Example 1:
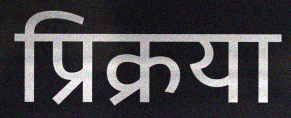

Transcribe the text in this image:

प्रिक्रया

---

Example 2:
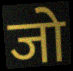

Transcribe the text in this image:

जो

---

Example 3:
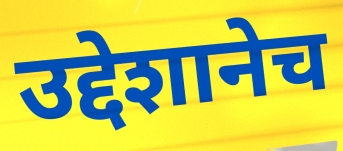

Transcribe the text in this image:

उद्देशानेच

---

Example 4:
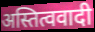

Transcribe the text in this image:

अस्तित्ववादी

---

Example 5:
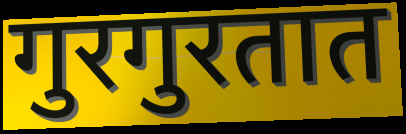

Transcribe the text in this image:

गुरगुरतात